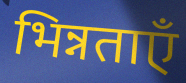
भिन्नताएँ